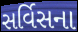
સર્વિસના